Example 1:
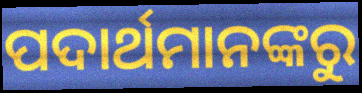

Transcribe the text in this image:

ପଦାର୍ଥମାନଙ୍କରୁ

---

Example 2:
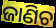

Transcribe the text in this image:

ଜାଣିଚ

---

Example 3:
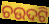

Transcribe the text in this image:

ଚଉଦଟି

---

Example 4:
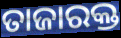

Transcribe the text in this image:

ତାଜାରକ୍ତ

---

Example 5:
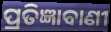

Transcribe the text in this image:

ପ୍ରତିଜ୍ଞାବାଣୀ